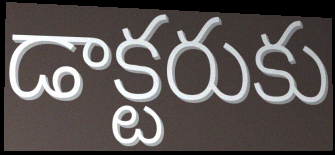
డాక్టరుకు